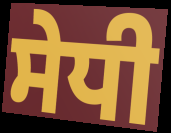
ਸੇਧੀ